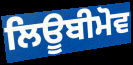
ਲਿਊਬੀਮੋਵ